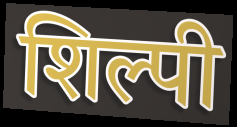
शिल्‍पी